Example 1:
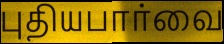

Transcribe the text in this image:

புதியபார்வை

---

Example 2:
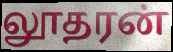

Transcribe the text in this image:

லூதரன்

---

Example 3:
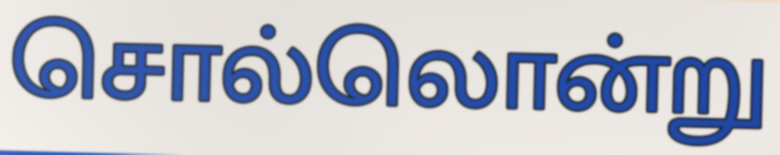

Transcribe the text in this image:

சொல்லொன்று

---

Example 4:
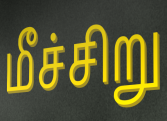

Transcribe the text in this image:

மீச்சிறு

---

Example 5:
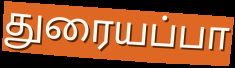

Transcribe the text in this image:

துரையப்பா